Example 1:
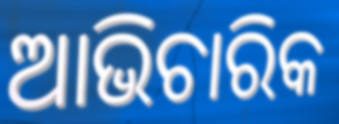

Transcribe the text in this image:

ଆଭିଚାରିକ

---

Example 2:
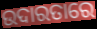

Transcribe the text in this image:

ଉଦାରତାରେ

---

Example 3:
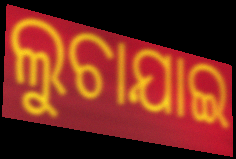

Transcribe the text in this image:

ଲୁଚାଯାଇ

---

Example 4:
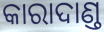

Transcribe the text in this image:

କାରାଦାଣ୍ଡ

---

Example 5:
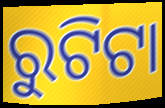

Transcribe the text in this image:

ରୁଟିଟା